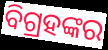
ବିଗ୍ରହଙ୍କର